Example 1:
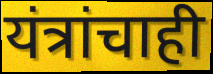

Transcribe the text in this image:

यंत्रांचाही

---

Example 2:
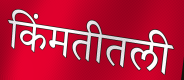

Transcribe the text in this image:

किंमतीतली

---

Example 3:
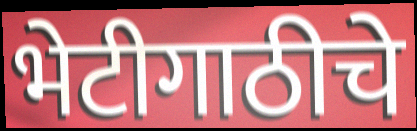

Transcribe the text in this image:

भेटीगाठीचे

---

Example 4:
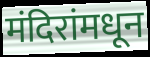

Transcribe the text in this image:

मंदिरांमधून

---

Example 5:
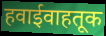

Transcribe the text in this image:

हवाईवाहतूक